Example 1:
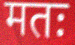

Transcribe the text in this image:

मतः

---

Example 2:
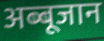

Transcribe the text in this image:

अब्बूजान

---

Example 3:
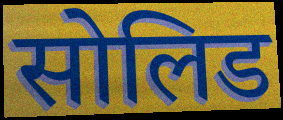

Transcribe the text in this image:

सोलिड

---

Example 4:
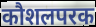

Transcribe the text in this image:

कौशलपरक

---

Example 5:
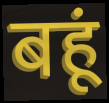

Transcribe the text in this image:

बहूं